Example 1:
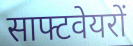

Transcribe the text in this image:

साफ्टवेयरों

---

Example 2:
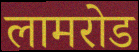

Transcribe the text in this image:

लामरोड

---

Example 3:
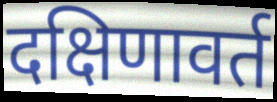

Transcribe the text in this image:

दक्षिणावर्त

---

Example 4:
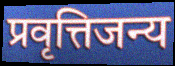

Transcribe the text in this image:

प्रवृत्तिजन्य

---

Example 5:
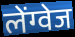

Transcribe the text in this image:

लेंग्वेज